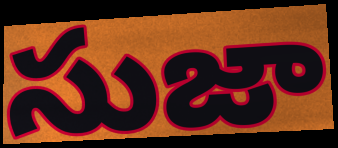
సుజా